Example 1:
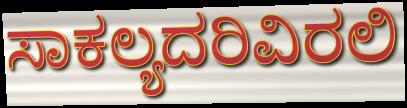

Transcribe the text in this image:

ಸಾಕಲ್ಯದರಿವಿರಲಿ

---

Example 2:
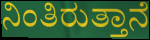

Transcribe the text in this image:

ನಿಂತಿರುತ್ತಾನೆ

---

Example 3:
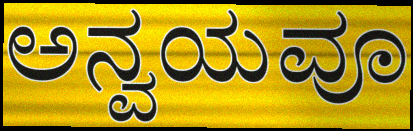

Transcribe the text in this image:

ಅನ್ವಯವೂ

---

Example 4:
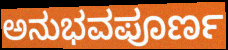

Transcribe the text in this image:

ಅನುಭವಪೂರ್ಣ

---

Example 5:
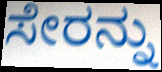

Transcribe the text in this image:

ಸೇರನ್ನು